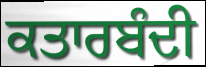
ਕਤਾਰਬੰਦੀ